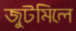
জুটমিলে